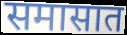
समासात